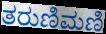
ತರುಣಿಮಣಿ